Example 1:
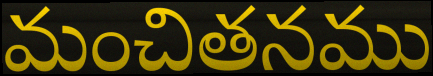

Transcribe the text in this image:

మంచితనము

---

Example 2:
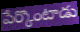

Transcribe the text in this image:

పేర్కొంటాడు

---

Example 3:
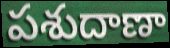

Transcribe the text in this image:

పశుదాణా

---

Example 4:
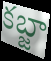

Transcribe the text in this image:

కబ్జా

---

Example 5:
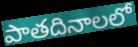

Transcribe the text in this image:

పాతదినాలలో